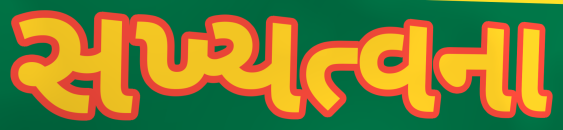
સખ્યત્વના